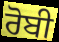
ਰੋਬੀ